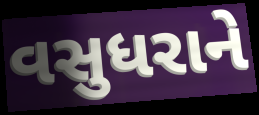
વસુધરાને